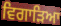
ਵਿਗਾੜਿਆ